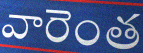
వారెంత